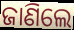
ଜାଣିଲେ